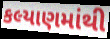
કલ્યાણમાંથી